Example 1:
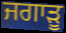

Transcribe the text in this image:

ਜਗਾੜੂ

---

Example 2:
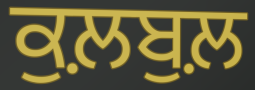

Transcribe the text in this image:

ਕੁਲ਼ਬੁਲ਼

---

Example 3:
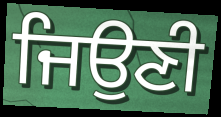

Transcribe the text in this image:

ਜਿਉਣੀ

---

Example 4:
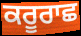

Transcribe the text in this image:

ਕਰੂਰਾਛ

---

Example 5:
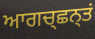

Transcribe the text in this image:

ਆਗਚ੍ਛਨ੍ਤਂ